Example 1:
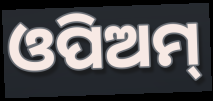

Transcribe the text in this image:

ଓପିଅମ୍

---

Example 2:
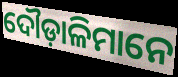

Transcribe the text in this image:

ଦୌଡ଼ାଳିମାନେ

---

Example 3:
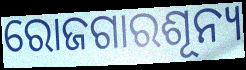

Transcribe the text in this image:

ରୋଜଗାରଶୂନ୍ୟ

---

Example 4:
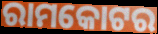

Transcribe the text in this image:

ରାମକୋଟର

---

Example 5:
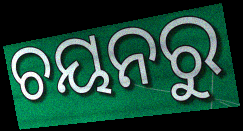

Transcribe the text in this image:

ଚୟନରୁ